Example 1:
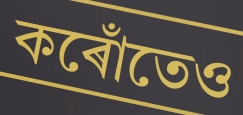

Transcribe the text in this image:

কৰোঁতেও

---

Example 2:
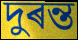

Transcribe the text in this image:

দুৰন্ত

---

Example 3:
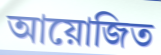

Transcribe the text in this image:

আয়োজিত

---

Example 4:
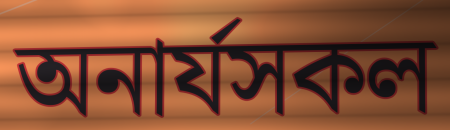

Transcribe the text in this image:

অনাৰ্যসকল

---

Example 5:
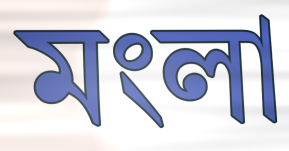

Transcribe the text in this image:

মংলা